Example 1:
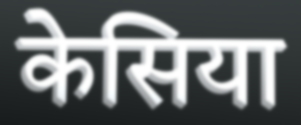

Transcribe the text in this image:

केसिया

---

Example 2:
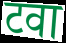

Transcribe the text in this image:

टवा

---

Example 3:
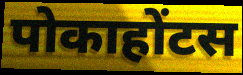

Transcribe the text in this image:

पोकाहोंटस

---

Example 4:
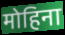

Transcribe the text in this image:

मोहिना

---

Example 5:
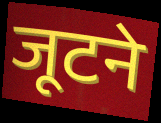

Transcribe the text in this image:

जूटने